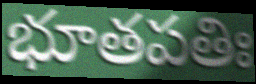
భూతపతిః